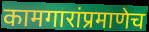
कामगारांप्रमाणेच